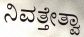
ನಿವತ್ತೇತ್ವಾ